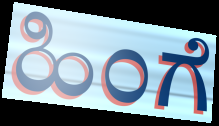
ಹಿಂಗೆ